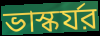
ভাস্কর্যর